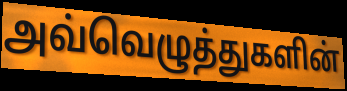
அவ்வெழுத்துகளின்